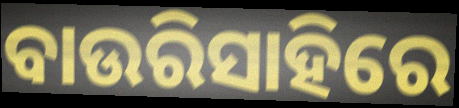
ବାଉରିସାହିରେ